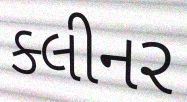
ક્લીનર